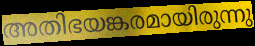
അതിഭയങ്കരമായിരുന്നു